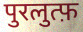
पुरलुत्फ़